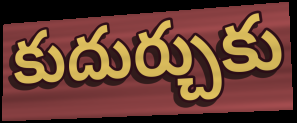
కుదుర్చుకు